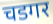
चडगर